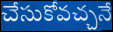
చేసుకోవచ్చనే